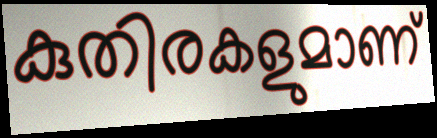
കുതിരകളുമാണ്